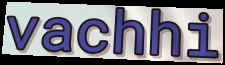
vachhi